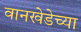
वानखेडेच्या